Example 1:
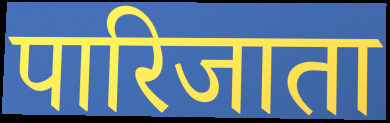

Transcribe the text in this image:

पारिजाता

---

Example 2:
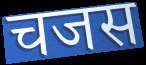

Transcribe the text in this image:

चजस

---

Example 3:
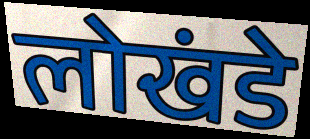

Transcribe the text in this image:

लोखंडे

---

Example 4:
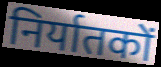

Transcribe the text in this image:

निर्यातकों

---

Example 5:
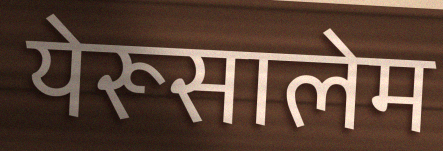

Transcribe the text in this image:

येरूसालेम